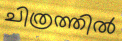
ചിത്രത്തിൽ